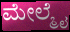
ಮೇಲ್ಮೈ